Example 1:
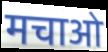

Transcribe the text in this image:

मचाओ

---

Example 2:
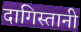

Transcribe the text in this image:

दागिस्तानी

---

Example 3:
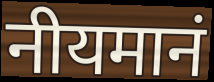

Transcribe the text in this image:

नीयमानं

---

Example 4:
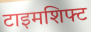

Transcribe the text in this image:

टाइमशिफ्ट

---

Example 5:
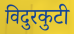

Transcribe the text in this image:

विदुरकुटी